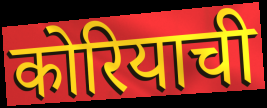
कोरियाची